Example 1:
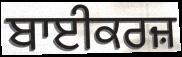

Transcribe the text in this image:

ਬਾਈਕਰਜ਼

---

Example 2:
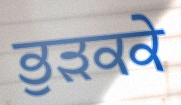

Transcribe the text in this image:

ਭੁੜਕਕੇ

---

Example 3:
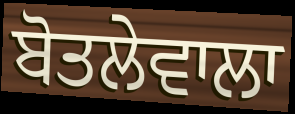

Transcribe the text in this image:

ਬੋਤਲੇਵਾਲਾ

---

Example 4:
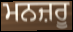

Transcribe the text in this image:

ਮਨਜ਼ਰੂ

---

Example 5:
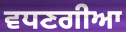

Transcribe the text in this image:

ਵਧਣਗੀਆ